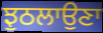
ਝੁਠਲਾਉਣਾ